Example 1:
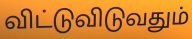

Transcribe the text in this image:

விட்டுவிடுவதும்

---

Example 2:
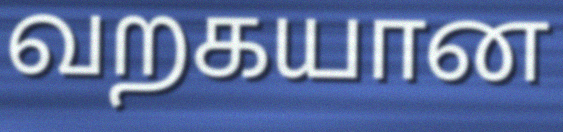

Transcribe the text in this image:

வறகயான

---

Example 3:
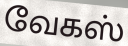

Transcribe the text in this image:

வேகஸ்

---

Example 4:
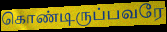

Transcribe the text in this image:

கொண்டிருப்பவரே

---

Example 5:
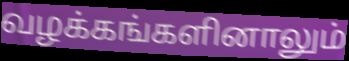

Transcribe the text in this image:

வழக்கங்களினாலும்